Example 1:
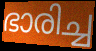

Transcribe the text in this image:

ഭാരിച്ച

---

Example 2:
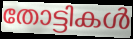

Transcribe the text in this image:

തോട്ടികൾ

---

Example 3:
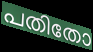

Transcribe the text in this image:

പതിതോ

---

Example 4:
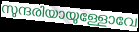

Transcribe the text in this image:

സുന്ദരിയായുള്ളോവേ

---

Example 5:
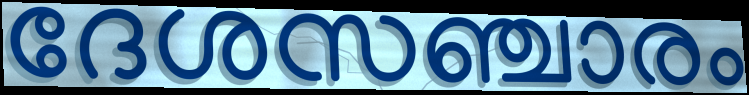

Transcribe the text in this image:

ദേശസഞ്ചാരം